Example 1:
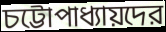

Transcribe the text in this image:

চট্টোপাধ্যায়দের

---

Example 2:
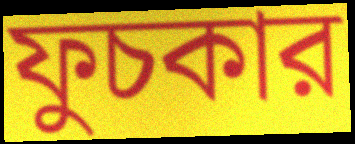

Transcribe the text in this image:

ফুচকার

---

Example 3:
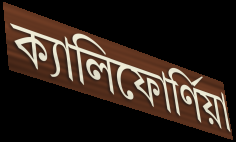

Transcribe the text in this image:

ক্যালিফোর্ণিয়া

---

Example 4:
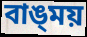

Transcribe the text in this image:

বাঙ্‌ময়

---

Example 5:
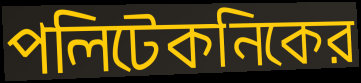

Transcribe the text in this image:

পলিটেকনিকের